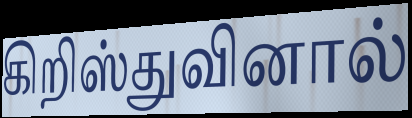
கிறிஸ்துவினால்